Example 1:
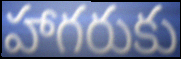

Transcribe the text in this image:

హాగరుకు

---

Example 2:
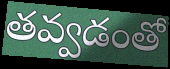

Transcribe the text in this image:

తవ్వడంతో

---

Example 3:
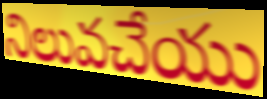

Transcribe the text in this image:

నిలువచేయు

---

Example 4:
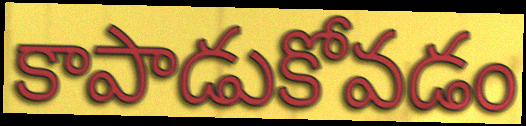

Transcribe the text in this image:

కాపాడుకోవడం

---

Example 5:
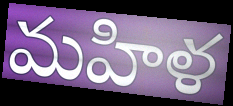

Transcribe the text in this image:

మహిళ